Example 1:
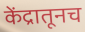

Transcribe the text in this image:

केंद्रातूनच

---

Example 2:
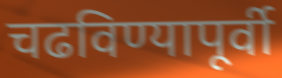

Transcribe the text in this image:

चढविण्यापूर्वी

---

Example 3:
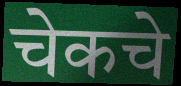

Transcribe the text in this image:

चेकचे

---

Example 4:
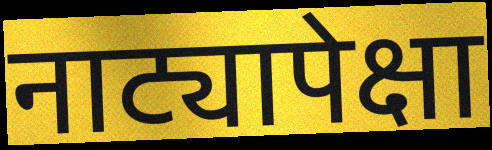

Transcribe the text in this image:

नाट्यापेक्षा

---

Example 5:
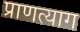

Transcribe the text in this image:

प्राणत्याग